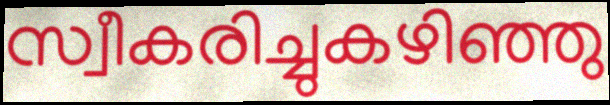
സ്വീകരിച്ചുകഴിഞ്ഞു